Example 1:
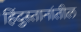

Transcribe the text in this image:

हिंदुस्तानांतील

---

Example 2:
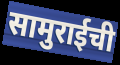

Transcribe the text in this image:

सामुराईची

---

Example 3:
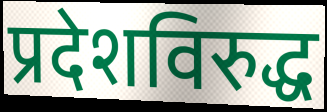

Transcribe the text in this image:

प्रदेशविरुद्ध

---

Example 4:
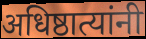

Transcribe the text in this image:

अधिष्ठात्यांनी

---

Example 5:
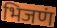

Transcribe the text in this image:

भिजणं